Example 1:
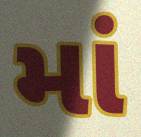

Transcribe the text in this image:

માં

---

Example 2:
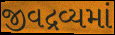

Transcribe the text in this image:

જીવદ્રવ્યમાં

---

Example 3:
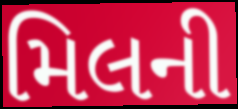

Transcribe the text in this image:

મિલની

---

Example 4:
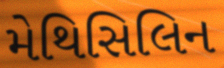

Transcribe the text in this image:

મેથિસિલિન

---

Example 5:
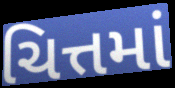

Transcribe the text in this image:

ચિત્તમાં